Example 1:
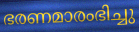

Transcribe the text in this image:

ഭരണമാരംഭിച്ചു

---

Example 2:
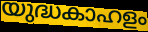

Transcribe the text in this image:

യുദ്ധകാഹളം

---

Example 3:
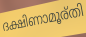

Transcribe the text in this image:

ദക്ഷിണാമൂര്തി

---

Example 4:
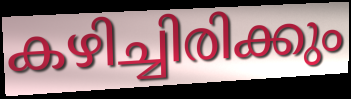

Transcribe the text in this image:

കഴിച്ചിരിക്കും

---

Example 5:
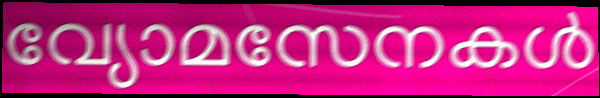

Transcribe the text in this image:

വ്യോമസേനകൾ